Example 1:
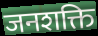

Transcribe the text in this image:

जनशक्ति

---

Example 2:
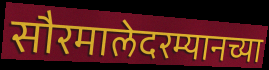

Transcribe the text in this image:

सौरमालेदरम्यानच्या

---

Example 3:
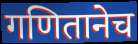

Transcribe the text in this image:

गणितानेच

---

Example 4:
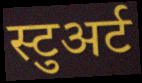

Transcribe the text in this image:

स्टुअर्ट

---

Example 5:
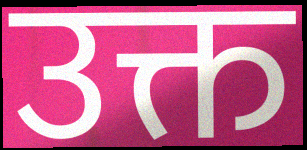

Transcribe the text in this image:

उक्त